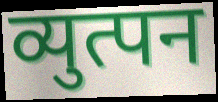
व्युत्पन